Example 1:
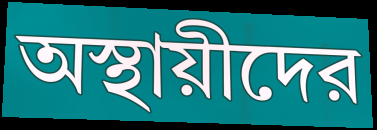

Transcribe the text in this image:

অস্থায়ীদের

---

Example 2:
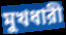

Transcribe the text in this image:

মুখধারী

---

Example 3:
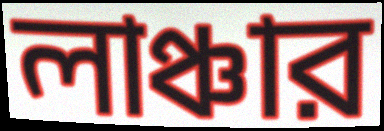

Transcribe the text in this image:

লাঞ্চার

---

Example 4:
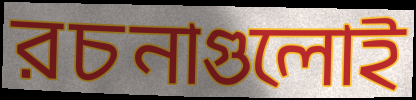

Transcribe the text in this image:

রচনাগুলোই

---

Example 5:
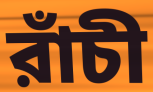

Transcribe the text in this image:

রাঁচী